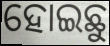
ହୋଇଛୁ